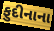
ફુદીનાના